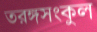
তরঙ্গসংকুল